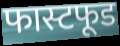
फास्‍टफूड